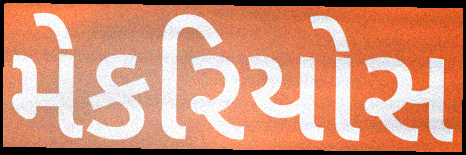
મેકરિયોસ